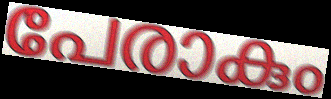
പേരാകും